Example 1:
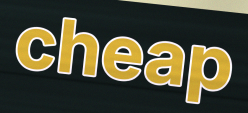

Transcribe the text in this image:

cheap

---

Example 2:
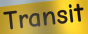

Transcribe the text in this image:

Transit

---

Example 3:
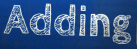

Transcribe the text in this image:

Adding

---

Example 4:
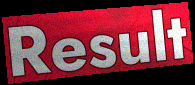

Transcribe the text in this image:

Result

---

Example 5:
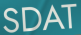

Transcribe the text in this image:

SDAT